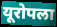
यूरोपला